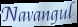
Navangul